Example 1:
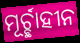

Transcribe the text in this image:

ମୂର୍ଚ୍ଛାହୀନ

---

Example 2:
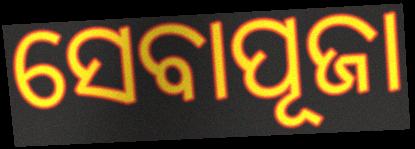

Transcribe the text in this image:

ସେବାପୂଜା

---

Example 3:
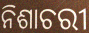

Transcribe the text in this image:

ନିଶାଚରୀ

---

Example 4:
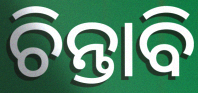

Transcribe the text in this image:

ଚିନ୍ତାବି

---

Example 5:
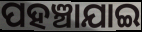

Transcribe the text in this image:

ପହଞ୍ଚାଯାଇ